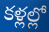
కళ్లల్లో